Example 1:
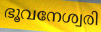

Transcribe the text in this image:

ഭൂവനേശ്വരി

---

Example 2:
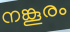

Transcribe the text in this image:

നങ്കൂരം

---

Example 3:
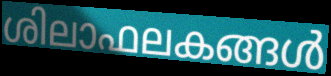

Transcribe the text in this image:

ശിലാഫലകങ്ങൾ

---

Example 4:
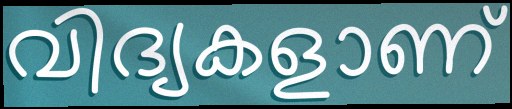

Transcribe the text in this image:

വിദ്യകളാണ്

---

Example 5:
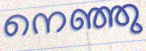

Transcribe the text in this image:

നെഞ്ഞു